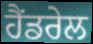
ਹੈਂਡਰੇਲ